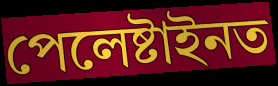
পেলেষ্টাইনত